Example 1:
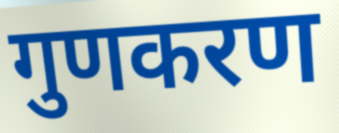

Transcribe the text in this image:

गुणकरण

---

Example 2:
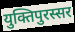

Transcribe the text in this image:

युक्तिपुरस्सर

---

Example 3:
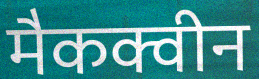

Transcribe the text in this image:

मैकक्वीन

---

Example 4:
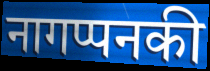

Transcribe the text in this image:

नागप्पनकी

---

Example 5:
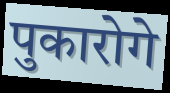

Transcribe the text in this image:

पुकारोगे